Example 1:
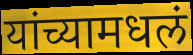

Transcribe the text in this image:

यांच्यामधलं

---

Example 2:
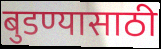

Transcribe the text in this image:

बुडण्यासाठी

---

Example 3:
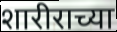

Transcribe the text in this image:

शारीराच्या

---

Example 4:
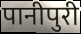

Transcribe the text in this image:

पानीपुरी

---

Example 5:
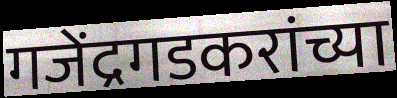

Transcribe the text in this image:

गजेंद्रगडकरांच्या